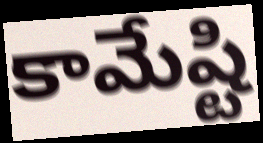
కామేష్టి